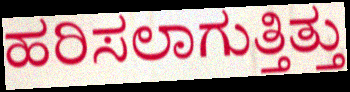
ಹರಿಸಲಾಗುತ್ತಿತ್ತು